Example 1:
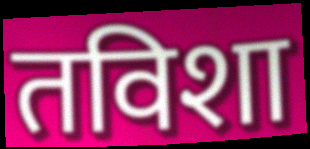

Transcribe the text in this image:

तविशा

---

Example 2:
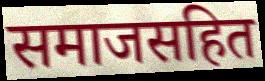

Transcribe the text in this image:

समाजसहित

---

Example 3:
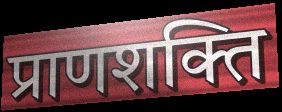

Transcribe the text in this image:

प्राणशक्ति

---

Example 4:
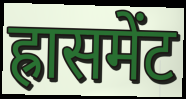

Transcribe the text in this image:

ह्रासमेंट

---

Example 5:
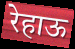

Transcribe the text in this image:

रेहाऊ